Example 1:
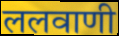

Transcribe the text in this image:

ललवाणी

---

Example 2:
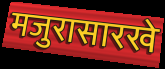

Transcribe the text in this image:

मजुरासारखे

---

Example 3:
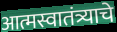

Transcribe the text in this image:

आत्मस्वातंत्र्याचे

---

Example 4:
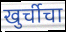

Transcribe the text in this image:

खुर्चीचा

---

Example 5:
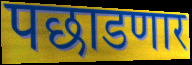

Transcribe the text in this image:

पछाडणार